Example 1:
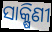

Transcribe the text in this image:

ସାକ୍ଷିଣୀ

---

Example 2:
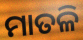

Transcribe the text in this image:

ମାତଳି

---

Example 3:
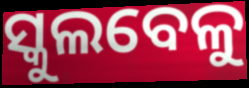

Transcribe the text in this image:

ସ୍କୁଲବେଳୁ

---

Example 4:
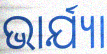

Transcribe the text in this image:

ଭାର୍ଯ୍ୟା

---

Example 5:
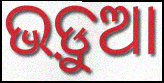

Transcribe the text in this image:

ଭଡ଼ୁଆ